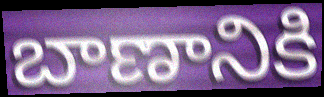
బాణానికి